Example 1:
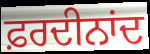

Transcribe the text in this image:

ਫ਼ਰਦੀਨਾਂਦ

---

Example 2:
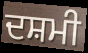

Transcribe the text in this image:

ਦਸ਼ਮੀ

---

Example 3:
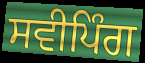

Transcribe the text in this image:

ਸਵੀਪਿੰਗ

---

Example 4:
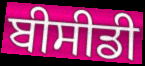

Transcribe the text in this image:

ਬੀਸੀਡੀ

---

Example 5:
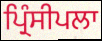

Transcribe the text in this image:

ਪ੍ਰਿੰਸੀਪਲਾ